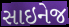
સાઇનેજ